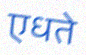
एधते